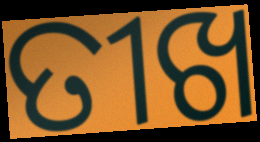
ତୀଖ